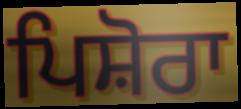
ਪਿਸ਼ੋਰਾ